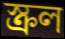
স্ক্রল